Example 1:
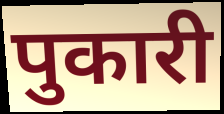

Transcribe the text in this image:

पुकारी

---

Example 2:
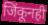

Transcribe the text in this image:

जिंकूनही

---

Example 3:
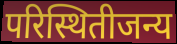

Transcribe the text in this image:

परिस्थितीजन्य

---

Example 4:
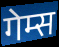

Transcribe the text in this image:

गेम्स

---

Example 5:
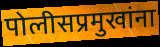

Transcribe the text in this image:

पोलीसप्रमुखांना